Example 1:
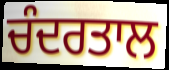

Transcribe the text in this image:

ਚੰਦਰਤਾਲ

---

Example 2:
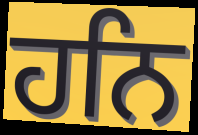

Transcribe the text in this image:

ਹਨਿ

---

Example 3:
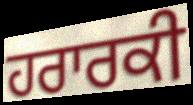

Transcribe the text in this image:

ਹਰਾਰਕੀ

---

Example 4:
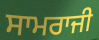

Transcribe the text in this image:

ਸਾਮਰਾਜੀ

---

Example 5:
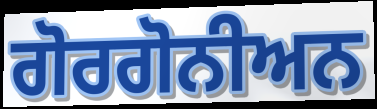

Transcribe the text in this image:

ਗੋਰਗੋਨੀਅਨ